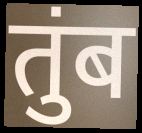
तुंब